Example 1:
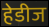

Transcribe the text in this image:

हेडीज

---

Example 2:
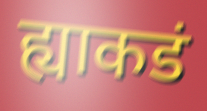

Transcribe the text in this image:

ह्याकडं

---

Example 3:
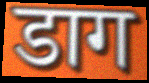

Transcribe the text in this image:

डाग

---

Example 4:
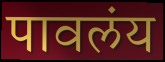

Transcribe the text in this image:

पावलंय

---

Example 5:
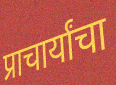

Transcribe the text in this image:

प्राचार्यांचा